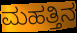
ಮಹತ್ತಿನ